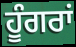
ਹੂੰਗਰਾਂ